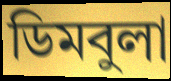
ডিমবুলা